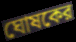
ঘোষকের